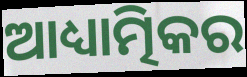
ଆଧ୍ୟାତ୍ମିକର